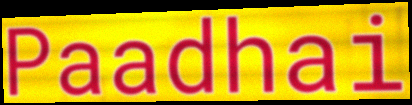
Paadhai